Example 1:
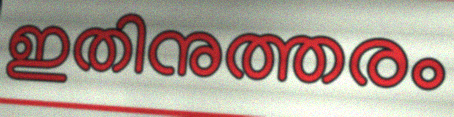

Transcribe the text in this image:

ഇതിനുത്തരം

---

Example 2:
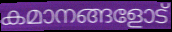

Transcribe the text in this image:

കമാനങ്ങളോട്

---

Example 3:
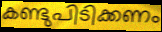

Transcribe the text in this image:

കണ്ടുപിടിക്കണം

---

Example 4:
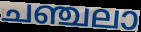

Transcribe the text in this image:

ചഞ്ചലാ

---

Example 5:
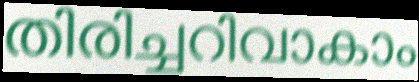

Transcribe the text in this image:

തിരിച്ചറിവാകാം